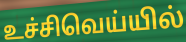
உச்சிவெய்யில்